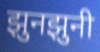
झुनझुनी